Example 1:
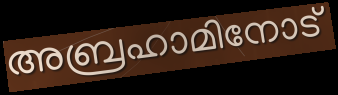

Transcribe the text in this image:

അബ്രഹാമിനോട്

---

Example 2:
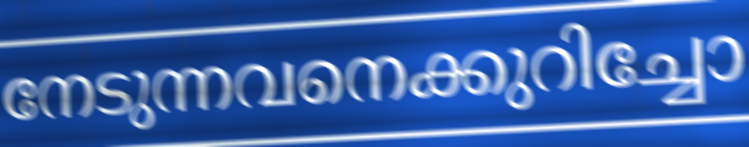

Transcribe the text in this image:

നേടുന്നവനെക്കുറിച്ചോ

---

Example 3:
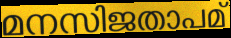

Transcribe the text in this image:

മനസിജതാപമ്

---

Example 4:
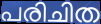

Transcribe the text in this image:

പരിചിത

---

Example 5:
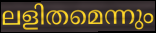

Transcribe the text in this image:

ലളിതമെന്നും